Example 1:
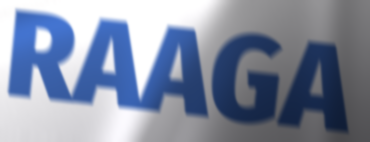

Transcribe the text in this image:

RAAGA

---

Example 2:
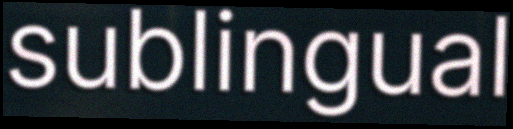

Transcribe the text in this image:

sublingual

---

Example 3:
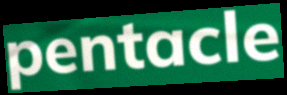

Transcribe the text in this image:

pentacle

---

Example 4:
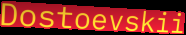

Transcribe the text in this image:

Dostoevskii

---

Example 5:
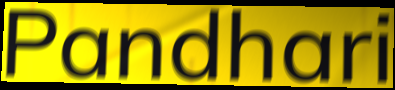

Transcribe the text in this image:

Pandhari